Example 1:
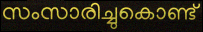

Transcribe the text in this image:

സംസാരിച്ചുകൊണ്ട്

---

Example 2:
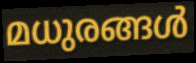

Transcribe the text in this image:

മധുരങ്ങൾ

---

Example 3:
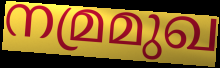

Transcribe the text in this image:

നമ്രമുഖ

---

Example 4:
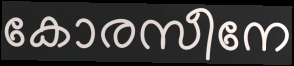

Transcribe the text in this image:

കോരസീനേ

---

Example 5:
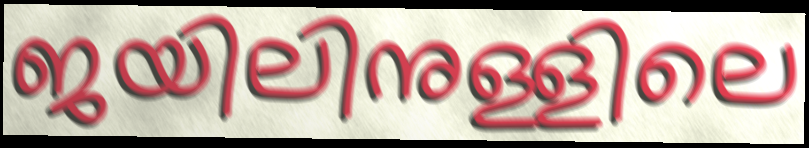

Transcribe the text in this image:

ജയിലിനുള്ളിലെ